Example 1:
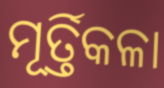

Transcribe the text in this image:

ମୂର୍ତ୍ତିକଳା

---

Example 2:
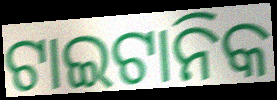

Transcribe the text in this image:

ଟାଇଟାନିକ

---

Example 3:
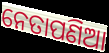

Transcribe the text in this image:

ନେତାପଣିଆ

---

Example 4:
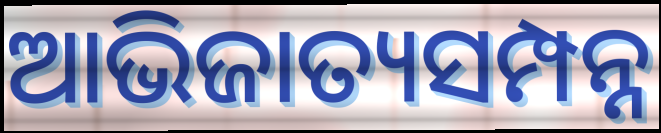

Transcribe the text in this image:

ଆଭିଜାତ୍ୟସମ୍ପନ୍ନ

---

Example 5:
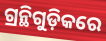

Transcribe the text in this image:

ଗ୍ରନ୍ଥିଗୁଡ଼ିକରେ